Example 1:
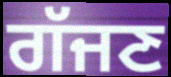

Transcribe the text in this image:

ਗੱਜਣ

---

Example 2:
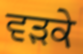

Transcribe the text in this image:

ਵੜਕੇ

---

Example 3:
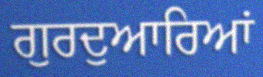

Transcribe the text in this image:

ਗੁਰਦੁਆਰਿਆਂ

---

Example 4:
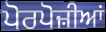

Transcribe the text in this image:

ਪੋਰਪੋਜ਼ੀਆਂ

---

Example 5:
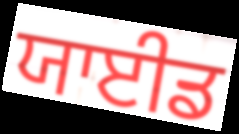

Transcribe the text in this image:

ਯਾਈਡ